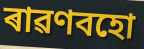
ৰাৱণবহো